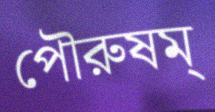
পৌরুষম্